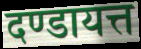
दण्डायत्त